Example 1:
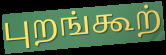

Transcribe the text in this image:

புறங்கூற்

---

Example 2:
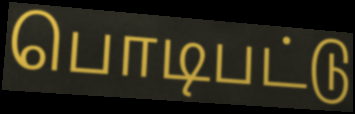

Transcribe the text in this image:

பொடிபட்டு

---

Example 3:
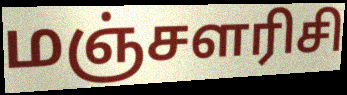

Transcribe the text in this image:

மஞ்சளரிசி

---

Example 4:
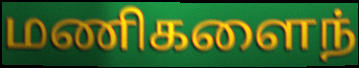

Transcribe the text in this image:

மணிகளைந்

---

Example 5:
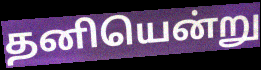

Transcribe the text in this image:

தனியென்று